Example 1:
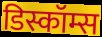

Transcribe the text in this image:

डिस्कॉम्स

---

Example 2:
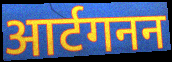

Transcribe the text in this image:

आर्टगनन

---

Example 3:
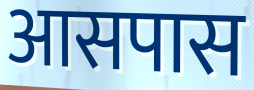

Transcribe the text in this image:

आसपास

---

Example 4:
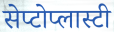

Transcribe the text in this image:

सेप्टोप्लास्टी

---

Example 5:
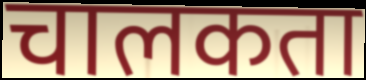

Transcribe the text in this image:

चालकता